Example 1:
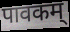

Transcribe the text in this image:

पावकम्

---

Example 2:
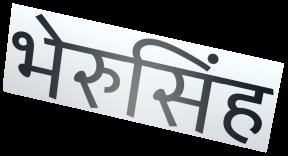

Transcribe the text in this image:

भेरुसिंह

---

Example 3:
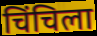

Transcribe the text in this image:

चिंचिला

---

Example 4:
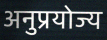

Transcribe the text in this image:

अनुप्रयोज्य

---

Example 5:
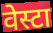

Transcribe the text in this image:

वेस्टा